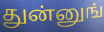
துன்னுங்